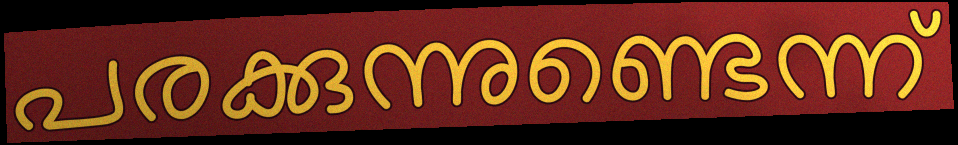
പരക്കുന്നുണ്ടെന്ന്